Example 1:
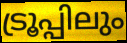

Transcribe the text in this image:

ട്രൂപ്പിലും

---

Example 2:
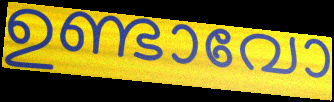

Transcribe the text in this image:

ഉണ്ടാവോ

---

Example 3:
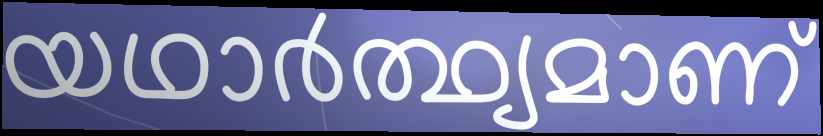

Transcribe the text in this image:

യഥാർത്ഥ്യമാണ്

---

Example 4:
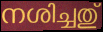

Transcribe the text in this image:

നശിച്ചതു്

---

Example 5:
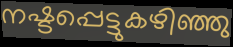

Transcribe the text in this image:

നഷ്ടപ്പെട്ടുകഴിഞ്ഞു